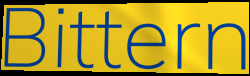
Bittern